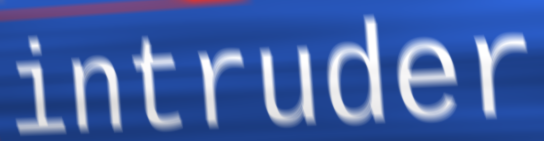
intruder